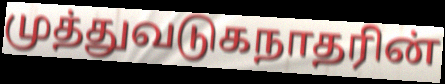
முத்துவடுகநாதரின்